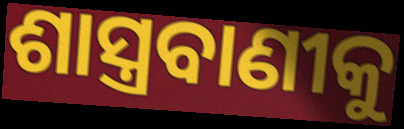
ଶାସ୍ତ୍ରବାଣୀକୁ